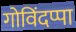
गोविंदप्पा